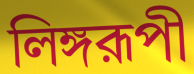
লিঙ্গরূপী